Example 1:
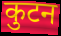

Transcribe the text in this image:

कुटन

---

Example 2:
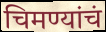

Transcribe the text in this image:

चिमण्यांचं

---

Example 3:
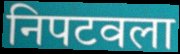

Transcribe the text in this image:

निपटवला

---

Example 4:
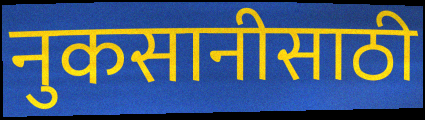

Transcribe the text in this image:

नुकसानीसाठी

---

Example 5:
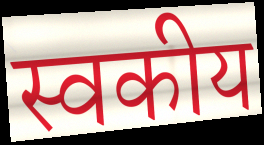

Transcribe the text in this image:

स्वकीय